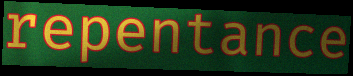
repentance